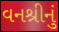
વનશ્રીનું